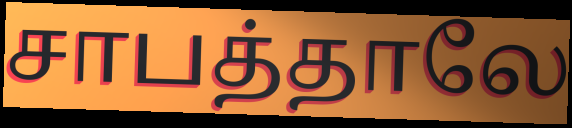
சாபத்தாலே